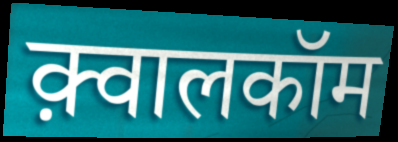
क़्वालकॉम